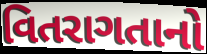
વિતરાગતાનો